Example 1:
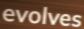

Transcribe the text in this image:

evolves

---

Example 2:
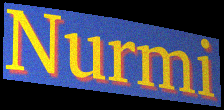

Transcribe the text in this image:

Nurmi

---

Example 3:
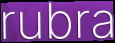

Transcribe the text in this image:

rubra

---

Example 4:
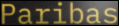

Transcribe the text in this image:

Paribas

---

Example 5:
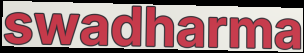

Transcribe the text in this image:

swadharma